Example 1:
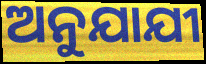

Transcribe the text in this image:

ଅନୁଯାଯୀ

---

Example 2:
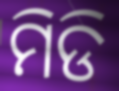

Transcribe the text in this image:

ମିଡି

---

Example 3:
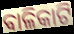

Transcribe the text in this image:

ବାଳିକାଟି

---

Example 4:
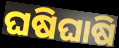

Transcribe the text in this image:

ଘଷିଘାଷି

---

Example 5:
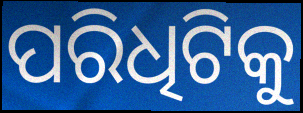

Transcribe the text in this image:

ପରିଧିଟିକୁ